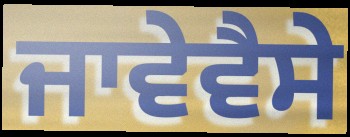
ਜਾਵੇਵੈਸੇ